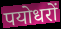
पयोधरों